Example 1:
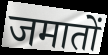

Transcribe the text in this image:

जमातों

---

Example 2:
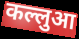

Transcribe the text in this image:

कल्लुआ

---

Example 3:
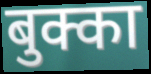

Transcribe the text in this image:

बुक्का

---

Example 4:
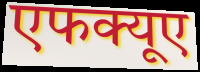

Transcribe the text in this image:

एफक्यूए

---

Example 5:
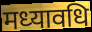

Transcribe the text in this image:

मध्‍यावधि